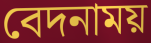
বেদনাময়